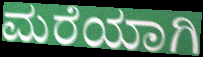
ಮರೆಯಾಗಿ